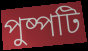
পুষ্পটি